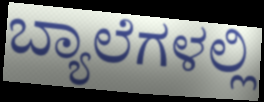
ಬ್ಯಾಲೆಗಳಲ್ಲಿ